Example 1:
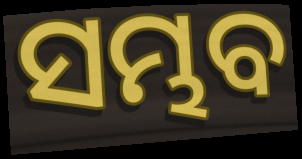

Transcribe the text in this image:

ସମ୍ଭବ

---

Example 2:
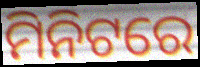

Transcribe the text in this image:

ମିନିଟରେ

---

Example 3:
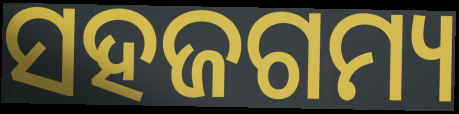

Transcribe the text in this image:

ସହଜଗମ୍ୟ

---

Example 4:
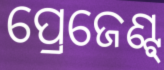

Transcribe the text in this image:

ପ୍ରେଜେଣ୍ଟ୍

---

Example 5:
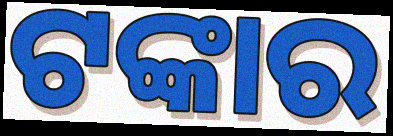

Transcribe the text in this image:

ଟଙ୍କାର